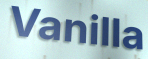
Vanilla